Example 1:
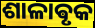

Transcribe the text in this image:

ଶାଳାଵୃକ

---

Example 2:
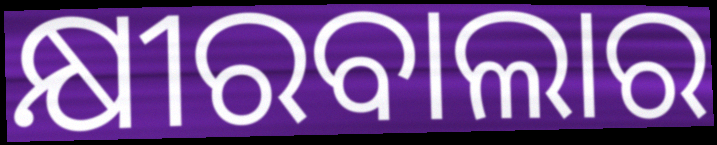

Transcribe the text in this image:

କ୍ଷୀରବାଲାର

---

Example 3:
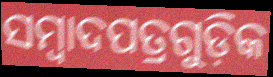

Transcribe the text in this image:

ସମ୍ୱାଦପତ୍ରଗୁଡ଼ିକ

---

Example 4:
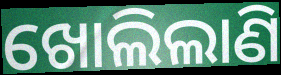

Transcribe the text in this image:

ଖୋଲିଲାଣି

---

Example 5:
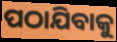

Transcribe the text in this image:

ପଠାଯିବାକୁ